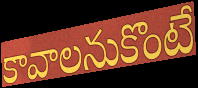
కావాలనుకొంటే